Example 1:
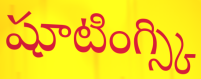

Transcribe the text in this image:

షూటింగ్స్కి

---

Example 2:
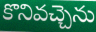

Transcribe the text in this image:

కొనివచ్చెను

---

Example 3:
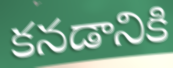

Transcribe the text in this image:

కనడానికి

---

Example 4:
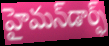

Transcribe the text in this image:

హైమన్‌డార్ఫ్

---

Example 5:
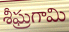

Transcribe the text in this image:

శీఘ్రగామి